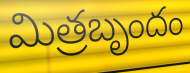
మిత్రబృందం